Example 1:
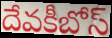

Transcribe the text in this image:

దేవకీబోస్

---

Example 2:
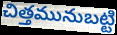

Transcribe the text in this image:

చిత్తమునుబట్టి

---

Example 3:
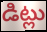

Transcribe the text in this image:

డిట్లు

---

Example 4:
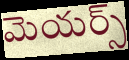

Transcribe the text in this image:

మెయర్స్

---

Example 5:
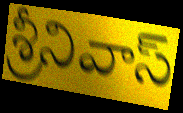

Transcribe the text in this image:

శ్రీనివాస్